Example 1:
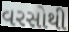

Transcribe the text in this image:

વરસોથી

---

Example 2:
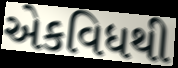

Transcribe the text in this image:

એકવિધથી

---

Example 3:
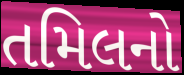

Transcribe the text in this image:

તમિલનો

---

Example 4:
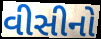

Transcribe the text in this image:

વીસીનો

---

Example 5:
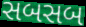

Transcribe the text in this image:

સબસબ